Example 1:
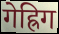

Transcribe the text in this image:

गेह्रिग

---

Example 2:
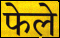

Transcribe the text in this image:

फेले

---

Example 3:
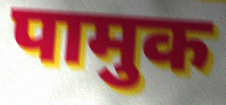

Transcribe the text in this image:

पामुक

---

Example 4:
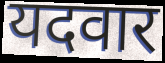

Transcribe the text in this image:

यदवार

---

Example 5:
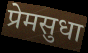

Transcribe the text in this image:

प्रेमसुधा